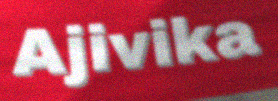
Ajivika